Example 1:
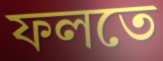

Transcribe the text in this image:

ফলতে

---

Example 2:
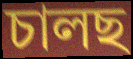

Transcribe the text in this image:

চালছ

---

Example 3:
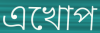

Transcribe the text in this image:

এখোপ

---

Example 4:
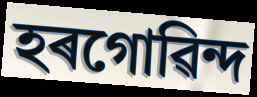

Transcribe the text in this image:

হৰগোৱিন্দ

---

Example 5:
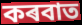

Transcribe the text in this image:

কৰবাত